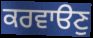
ਕਰਵਾੳਣੁ